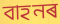
বাহনৰ